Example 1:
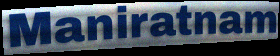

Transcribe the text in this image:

Maniratnam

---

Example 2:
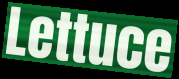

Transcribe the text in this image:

Lettuce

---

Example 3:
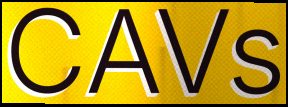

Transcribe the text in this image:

CAVs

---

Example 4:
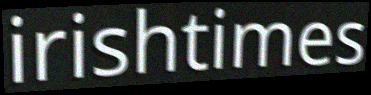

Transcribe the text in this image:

irishtimes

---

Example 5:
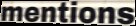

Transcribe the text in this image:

mentions